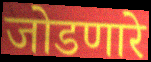
जोडणारे